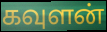
கவுளன்